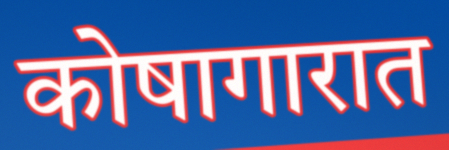
कोषागारात